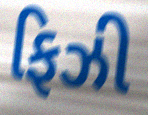
ફિઝી